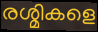
രശ്മികളെ